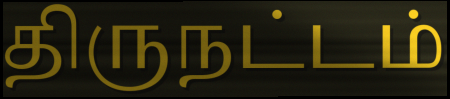
திருநட்டம்